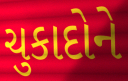
ચુકાદોને